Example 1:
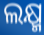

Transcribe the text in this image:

ଲକ୍ଷ୍ମ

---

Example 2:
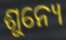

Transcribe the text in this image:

ଶୁନ୍ୟେ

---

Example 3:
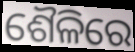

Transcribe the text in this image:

ଶୈଳିରେ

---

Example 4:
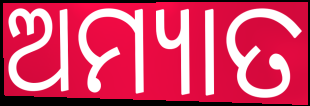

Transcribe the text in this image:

ଅମ୍ୟାତ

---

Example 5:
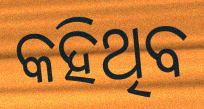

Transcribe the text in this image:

କହିଥିବ